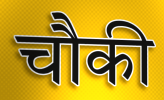
चौकी